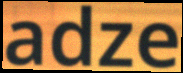
adze